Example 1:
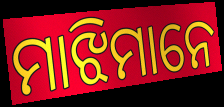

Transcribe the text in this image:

ମାଝିମାନେ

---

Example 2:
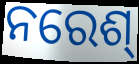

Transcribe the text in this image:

ନରେଶ୍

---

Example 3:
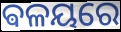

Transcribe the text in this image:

ଵଳୟରେ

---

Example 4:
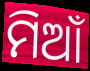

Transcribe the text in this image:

ମିଆଁ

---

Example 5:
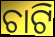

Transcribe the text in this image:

ଚାଟି